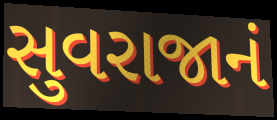
સુવરાજાનં